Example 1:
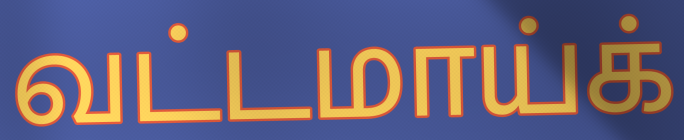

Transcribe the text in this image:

வட்டமாய்க்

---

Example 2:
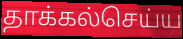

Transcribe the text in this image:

தாக்கல்செய்ய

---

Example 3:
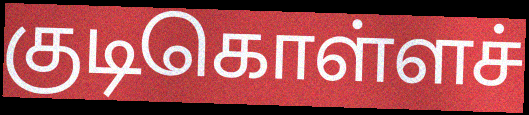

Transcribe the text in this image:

குடிகொள்ளச்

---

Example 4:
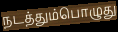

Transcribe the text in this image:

நடத்தும்பொழுது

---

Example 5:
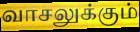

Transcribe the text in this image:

வாசலுக்கும்